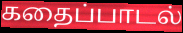
கதைப்பாடல்